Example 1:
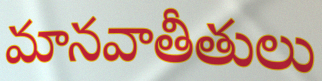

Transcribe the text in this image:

మానవాతీతులు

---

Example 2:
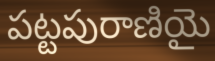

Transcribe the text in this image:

పట్టపురాణియై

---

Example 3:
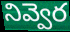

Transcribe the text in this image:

నివ్వెర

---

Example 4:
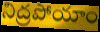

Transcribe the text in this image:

నిద్రపోయాం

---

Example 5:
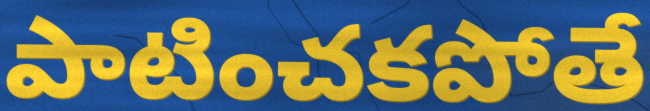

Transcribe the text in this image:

పాటించకపోతే